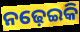
ନଢ଼େଇକି